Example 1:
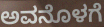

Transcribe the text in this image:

ಅವನೊಳಗೆ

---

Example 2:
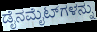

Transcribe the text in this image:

ಡೈನಮೈಟ್‌ಗಳನ್ನು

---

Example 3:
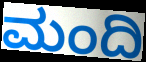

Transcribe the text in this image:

ಮಂದಿ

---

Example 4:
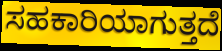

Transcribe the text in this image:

ಸಹಕಾರಿಯಾಗುತ್ತದೆ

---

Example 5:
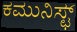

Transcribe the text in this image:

ಕಮುನಿಸ್ಟ್